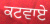
ਕਟਵਾਏ